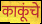
काकूंचे